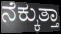
ನೆಕ್ಕುತ್ತಾ